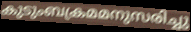
കുടുംബക്രമമനുസരിച്ചു